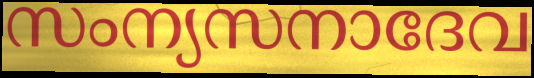
സംന്യസനാദേവ